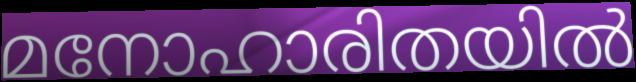
മനോഹാരിതയിൽ